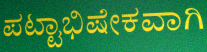
ಪಟ್ಟಾಭಿಷೇಕವಾಗಿ